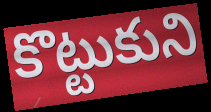
కొట్టుకుని